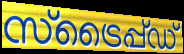
സ്ട്രൈപ്പ്ഡ്